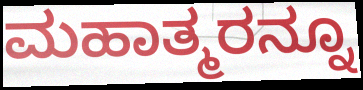
ಮಹಾತ್ಮರನ್ನೂ